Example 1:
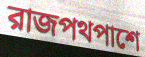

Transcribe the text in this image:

রাজপথপাশে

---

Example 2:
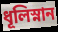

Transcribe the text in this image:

ধূলিস্নান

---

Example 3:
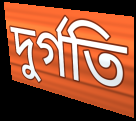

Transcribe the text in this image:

দুর্গতি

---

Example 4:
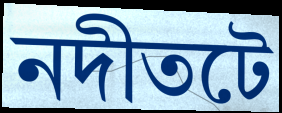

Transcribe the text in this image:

নদীতটে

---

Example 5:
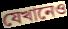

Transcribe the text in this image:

যেখানেও